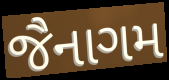
જૈનાગમ